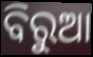
ବିରୁଆ